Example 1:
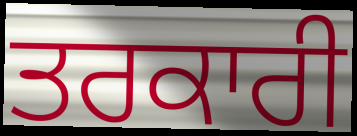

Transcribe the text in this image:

ਤਰਕਾਰੀ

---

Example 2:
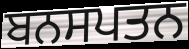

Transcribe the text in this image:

ਬਨਸਪਤਨ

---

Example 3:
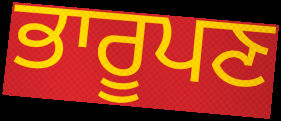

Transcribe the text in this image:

ਭਾਰੂਪਣ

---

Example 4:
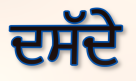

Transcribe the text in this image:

ਦਸੱਦੇ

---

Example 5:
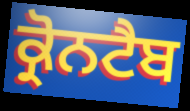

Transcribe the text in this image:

ਕ੍ਰੋਨਟੈਬ